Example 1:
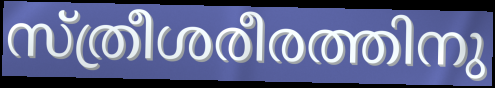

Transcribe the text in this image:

സ്ത്രീശരീരത്തിനു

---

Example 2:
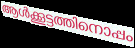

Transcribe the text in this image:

ആൾക്കൂട്ടത്തിനൊപ്പം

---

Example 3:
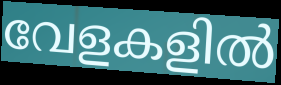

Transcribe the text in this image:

വേളകളിൽ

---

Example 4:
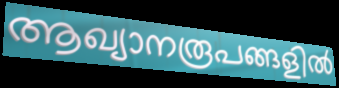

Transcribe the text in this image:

ആഖ്യാനരൂപങ്ങളിൽ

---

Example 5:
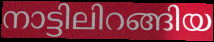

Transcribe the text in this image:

നാട്ടിലിറങ്ങിയ